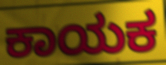
ಕಾಯಕ